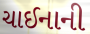
ચાઈનાની